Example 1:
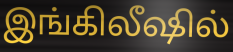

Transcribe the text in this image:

இங்கிலீஷில்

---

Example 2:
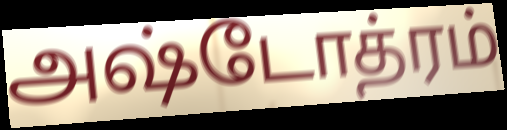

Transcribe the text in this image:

அஷ்டோத்ரம்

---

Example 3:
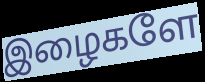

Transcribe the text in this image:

இழைகளே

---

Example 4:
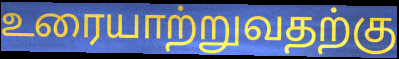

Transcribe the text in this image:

உரையாற்றுவதற்கு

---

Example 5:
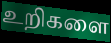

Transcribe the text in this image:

உறிகளை